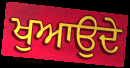
ਖੁਆਉਦੇ